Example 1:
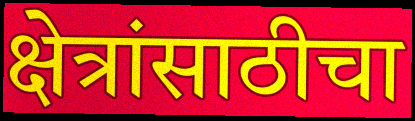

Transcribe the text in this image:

क्षेत्रांसाठीचा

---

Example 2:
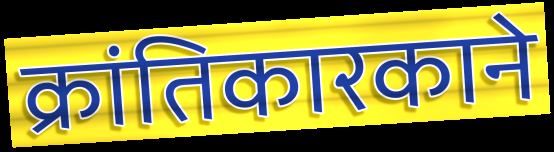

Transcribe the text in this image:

क्रांतिकारकाने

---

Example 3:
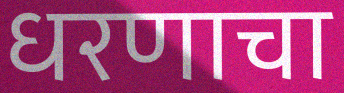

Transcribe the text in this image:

धरणाचा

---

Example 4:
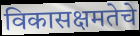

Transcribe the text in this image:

विकासक्षमतेचे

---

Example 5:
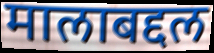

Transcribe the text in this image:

मालाबद्दल